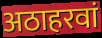
अठाहरवां